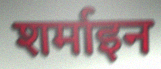
शर्माइन